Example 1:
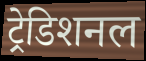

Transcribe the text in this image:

ट्रेडिशनल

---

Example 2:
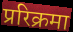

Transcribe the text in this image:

प्ररिक्रमा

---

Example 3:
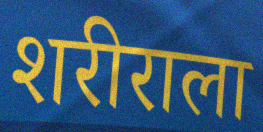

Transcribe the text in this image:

शरीराला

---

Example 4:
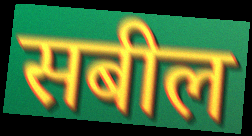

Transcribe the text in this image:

सबील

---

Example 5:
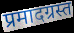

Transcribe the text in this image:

प्रमादग्रस्त